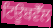
ਟਿਊਬਵੈੱਲ